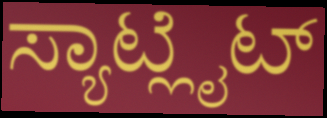
ಸ್ಯಾಟ್ಲೈಟ್